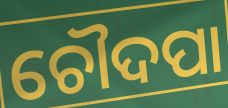
ଚୌଦପା